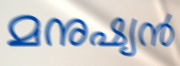
മനുഷ്യൻ